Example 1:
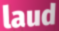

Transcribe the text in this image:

laud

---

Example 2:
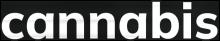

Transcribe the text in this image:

cannabis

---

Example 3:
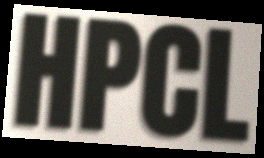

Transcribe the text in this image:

HPCL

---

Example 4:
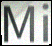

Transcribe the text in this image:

Mi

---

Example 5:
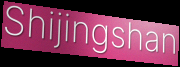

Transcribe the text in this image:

Shijingshan